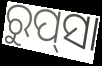
ରୁପ୍‍ସା